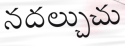
నదల్చుచు